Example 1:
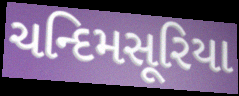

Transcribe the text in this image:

ચન્દિમસૂરિયા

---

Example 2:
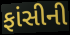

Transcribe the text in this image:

ફાંસીની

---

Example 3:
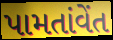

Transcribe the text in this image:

પામતાંવેંત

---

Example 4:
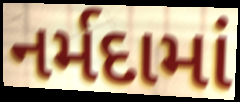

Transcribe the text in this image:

નર્મદામાં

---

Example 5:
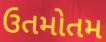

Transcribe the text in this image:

ઉતમોતમ